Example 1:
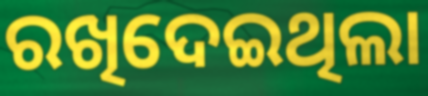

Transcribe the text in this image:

ରଖିଦେଇଥିଲା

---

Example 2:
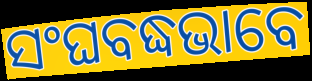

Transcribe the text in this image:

ସଂଘବଦ୍ଧଭାବେ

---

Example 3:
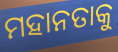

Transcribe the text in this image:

ମହାନତାକୁ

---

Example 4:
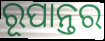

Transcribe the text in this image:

ରୂପାନ୍ତର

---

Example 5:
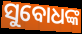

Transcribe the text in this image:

ସୁବୋଧଙ୍କ